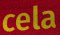
cela